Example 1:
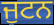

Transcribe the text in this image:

ਜੁਟਨ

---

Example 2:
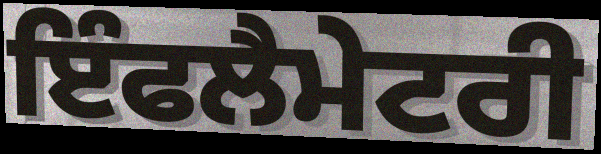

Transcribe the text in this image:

ਇੰਫਲੈਮੇਟਰੀ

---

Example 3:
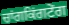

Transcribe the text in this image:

ਚਾਂਗਕਿਂਗਟੇਂਗ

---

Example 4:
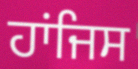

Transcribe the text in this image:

ਹਾਂਜਿਸ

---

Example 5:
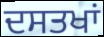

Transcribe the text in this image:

ਦਸਤਖਾਂ